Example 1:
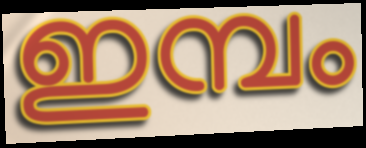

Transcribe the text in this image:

ഇമ്പം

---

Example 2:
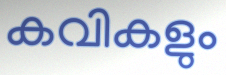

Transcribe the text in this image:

കവികളും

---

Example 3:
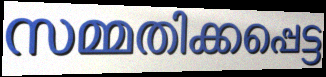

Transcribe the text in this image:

സമ്മതിക്കപ്പെട്ട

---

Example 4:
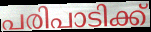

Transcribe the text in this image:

പരിപാടിക്ക്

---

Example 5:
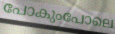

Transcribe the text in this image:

പോകുംപോലെ